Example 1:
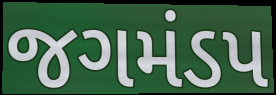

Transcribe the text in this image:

જગમંડપ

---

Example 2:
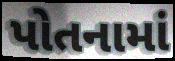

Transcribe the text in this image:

પોતનામાં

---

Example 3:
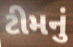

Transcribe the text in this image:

ટીમનું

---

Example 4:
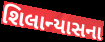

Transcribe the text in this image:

શિલાન્યાસના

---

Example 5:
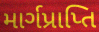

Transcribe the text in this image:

માર્ગપ્રાપ્તિ